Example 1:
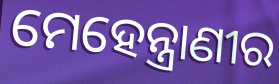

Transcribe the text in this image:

ମେହେନ୍ତ୍ରାଣୀର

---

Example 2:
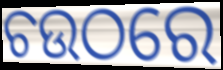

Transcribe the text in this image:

ଚଉଠରେ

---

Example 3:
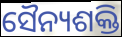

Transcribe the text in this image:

ସୈନ୍ୟଶକ୍ତି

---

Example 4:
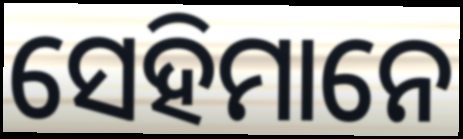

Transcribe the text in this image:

ସେହିମାନେ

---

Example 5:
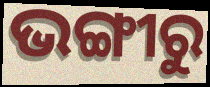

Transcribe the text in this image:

ଭଙ୍ଗୀରୁ